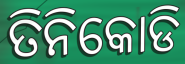
ତିନିକୋଡି